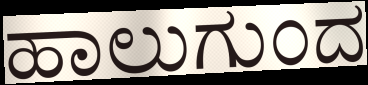
ಹಾಲುಗುಂದ